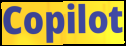
Copilot